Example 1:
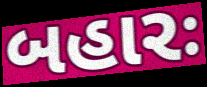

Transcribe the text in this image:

બહારઃ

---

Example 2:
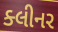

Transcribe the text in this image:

ક્લીનર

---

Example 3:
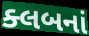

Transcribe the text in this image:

ક્લબનાં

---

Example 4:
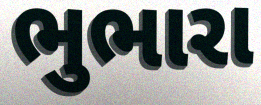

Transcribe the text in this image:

ભુભારા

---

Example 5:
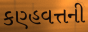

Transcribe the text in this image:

કણ્હવત્તની